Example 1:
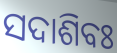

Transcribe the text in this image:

ସଦାଶିବଃ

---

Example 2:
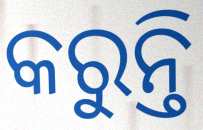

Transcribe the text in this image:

କରୁନ୍ତି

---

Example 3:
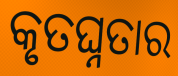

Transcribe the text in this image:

କୃତଘ୍ନତାର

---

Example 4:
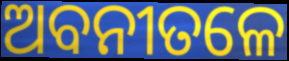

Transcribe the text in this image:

ଅବନୀତଳେ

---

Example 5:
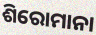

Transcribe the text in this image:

ଶିରୋମାନା